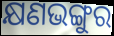
କ୍ଷଣଭଙ୍ଗୁର